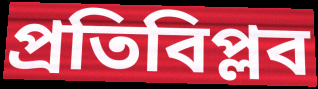
প্রতিবিপ্লব